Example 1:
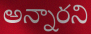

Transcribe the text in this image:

అన్నారని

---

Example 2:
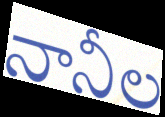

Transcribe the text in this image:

నానీల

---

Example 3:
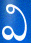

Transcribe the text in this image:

వి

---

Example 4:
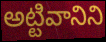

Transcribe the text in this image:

అట్టివానిని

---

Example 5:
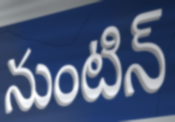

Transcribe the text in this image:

నుంటిన్